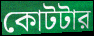
কোটটার